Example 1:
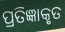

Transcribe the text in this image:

ପ୍ରତିଜ୍ଞାକୃତ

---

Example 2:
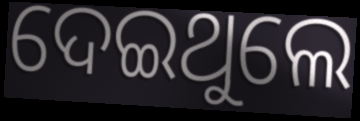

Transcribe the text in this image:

ଦେଇଥୁଲେ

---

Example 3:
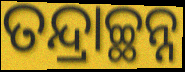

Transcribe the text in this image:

ତନ୍ଦ୍ରାଚ୍ଛନ୍ନ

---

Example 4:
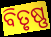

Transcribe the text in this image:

ବିତୃଷ୍ଣ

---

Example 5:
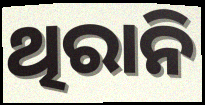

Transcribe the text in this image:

ଥିରାନି